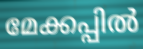
മേക്കപ്പിൽ